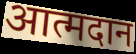
आत्मदान